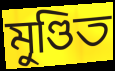
মুণ্ডিত